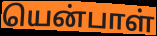
யென்பாள்